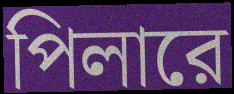
পিলারে